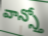
వాన్స్తో